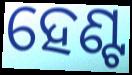
ହେଣ୍ଟ